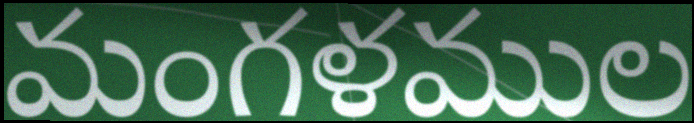
మంగళముల